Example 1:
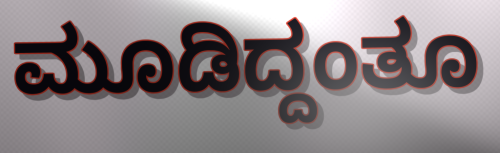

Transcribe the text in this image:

ಮೂಡಿದ್ದಂತೂ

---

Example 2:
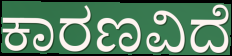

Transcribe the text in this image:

ಕಾರಣವಿದೆ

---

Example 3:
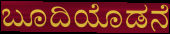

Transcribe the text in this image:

ಬೂದಿಯೊಡನೆ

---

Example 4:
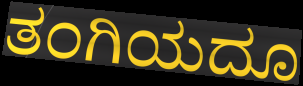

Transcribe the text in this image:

ತಂಗಿಯದೂ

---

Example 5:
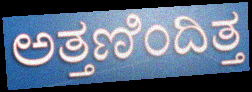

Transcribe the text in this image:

ಅತ್ತಣಿಂದಿತ್ತ